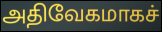
அதிவேகமாகச்